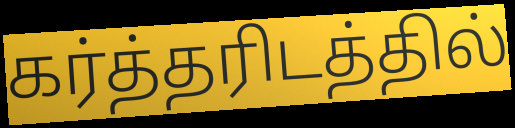
கர்த்தரிடத்தில்